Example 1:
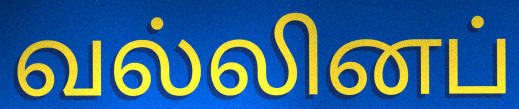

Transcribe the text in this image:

வல்லினப்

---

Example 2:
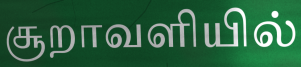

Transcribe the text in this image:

சூறாவளியில்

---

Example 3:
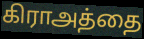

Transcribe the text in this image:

கிராஅத்தை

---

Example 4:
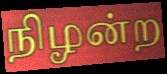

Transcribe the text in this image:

நிழன்ற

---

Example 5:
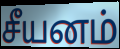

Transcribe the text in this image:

சீயனம்